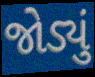
જોડ્યું